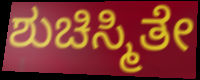
ಶುಚಿಸ್ಮಿತೇ